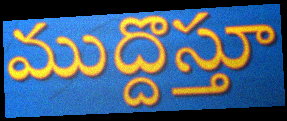
ముద్దొస్తూ